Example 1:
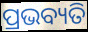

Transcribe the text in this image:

ପ୍ରଭବ୍ୟତି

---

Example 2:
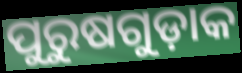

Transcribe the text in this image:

ପୁରୁଷଗୁଡ଼ାକ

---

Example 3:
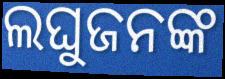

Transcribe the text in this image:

ଲଘୁଜନଙ୍କ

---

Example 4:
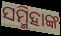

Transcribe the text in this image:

ସମ୍ମିହାଙ୍କ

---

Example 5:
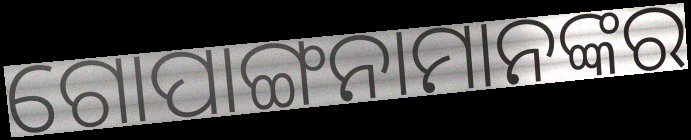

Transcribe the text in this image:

ଗୋପାଙ୍ଗନାମାନଙ୍କର